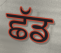
ਛੱਡ